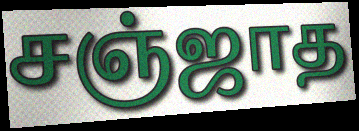
சஞ்ஜாத